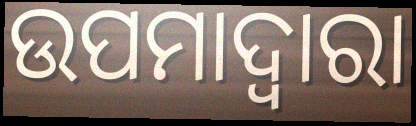
ଉପମାଦ୍ୱାରା